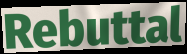
Rebuttal